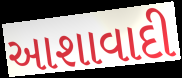
આશાવાદી